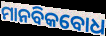
ମାନବିକବୋଧ